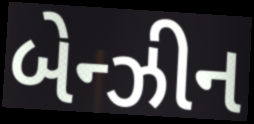
બેન્ઝીન